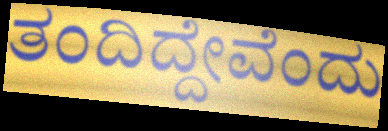
ತಂದಿದ್ದೇವೆಂದು